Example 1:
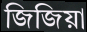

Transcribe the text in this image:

জিজিয়া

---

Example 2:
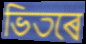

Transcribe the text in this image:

ভিতৰে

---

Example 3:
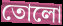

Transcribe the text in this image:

তোলো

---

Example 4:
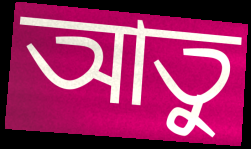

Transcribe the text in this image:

আতু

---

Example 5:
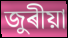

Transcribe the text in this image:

জুৰীয়া